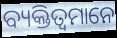
ବ୍ୟକ୍ତିତ୍ୱମାନେ